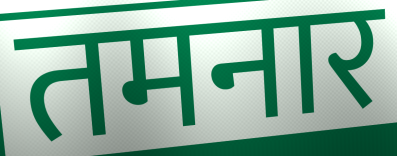
तमनार